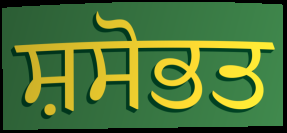
ਸ਼ਸੋਭਤ